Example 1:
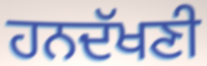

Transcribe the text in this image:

ਹਨਦੱਖਣੀ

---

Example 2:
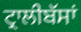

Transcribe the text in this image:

ਟ੍ਰਾਲੀਬੱਸਾਂ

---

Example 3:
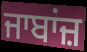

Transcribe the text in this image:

ਜਾਬਾਂਜ਼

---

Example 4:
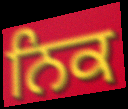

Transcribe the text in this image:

ਨਿਕ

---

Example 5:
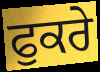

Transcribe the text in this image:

ਫੁਕਰੇ